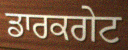
ਡਾਰਕਗੇਟ